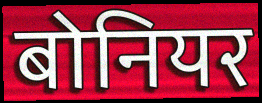
बोनियर